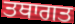
ਤਥਾਗਤ